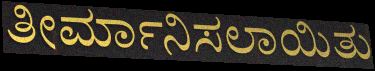
ತೀರ್ಮಾನಿಸಲಾಯಿತು